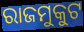
ରାଜମୁକୁଟ